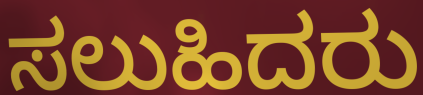
ಸಲುಹಿದರು